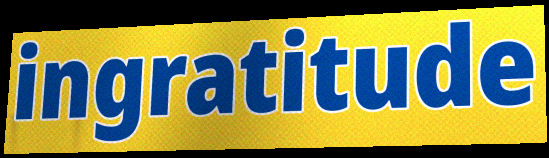
ingratitude